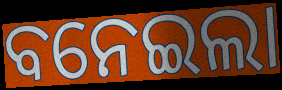
ବନେଇଲା